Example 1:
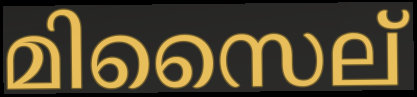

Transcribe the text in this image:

മിസൈല്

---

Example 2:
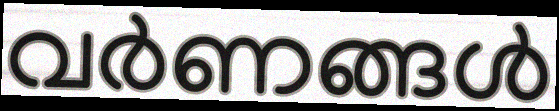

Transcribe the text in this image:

വർണങ്ങൾ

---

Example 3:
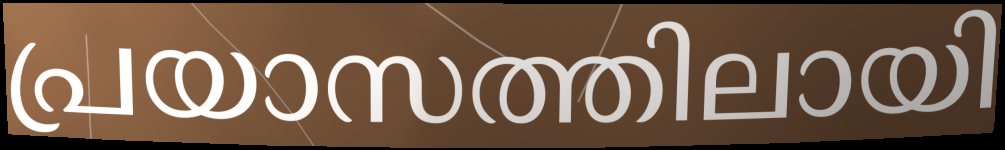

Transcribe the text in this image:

പ്രയാസത്തിലായി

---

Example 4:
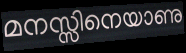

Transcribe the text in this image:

മനസ്സിനെയാണു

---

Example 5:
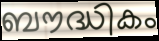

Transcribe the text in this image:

ബൗദ്ധികം